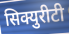
सिक्युरीटी